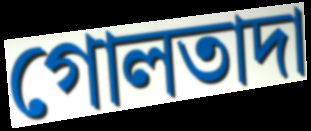
গোলতাদা